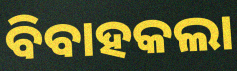
ବିବାହକଲା